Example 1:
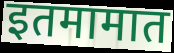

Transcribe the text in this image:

इतमामात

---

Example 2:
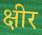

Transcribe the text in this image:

क्षीर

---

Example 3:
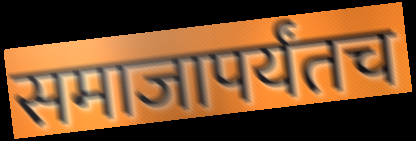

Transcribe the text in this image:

समाजापर्यंतच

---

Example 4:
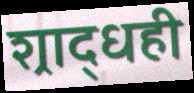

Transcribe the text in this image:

श्राद्धही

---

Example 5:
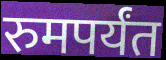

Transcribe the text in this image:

रुमपर्यंत